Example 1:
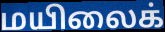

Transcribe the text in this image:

மயிலைக்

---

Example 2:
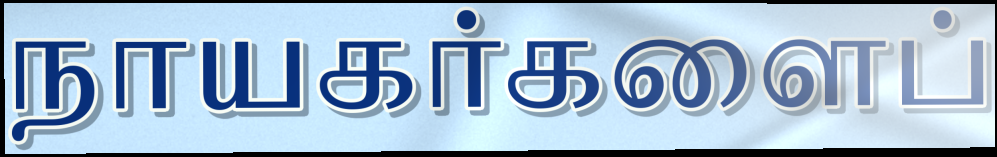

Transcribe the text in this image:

நாயகர்களைப்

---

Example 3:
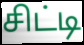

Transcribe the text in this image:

சிட்டி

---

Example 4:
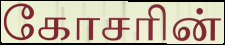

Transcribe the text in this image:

கோசரின்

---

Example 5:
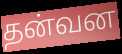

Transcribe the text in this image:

தன்வன